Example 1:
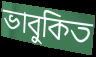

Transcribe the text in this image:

ভাবুকিত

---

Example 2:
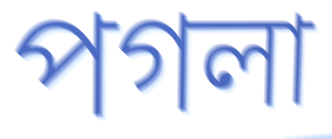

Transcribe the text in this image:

পগলা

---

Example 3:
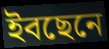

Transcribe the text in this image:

ইবছেনে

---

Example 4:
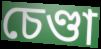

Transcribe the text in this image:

চেণ্ডা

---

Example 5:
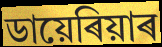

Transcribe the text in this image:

ডায়েৰিয়াৰ